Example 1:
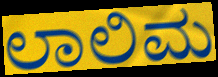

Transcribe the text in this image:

ಲಾಲಿಮ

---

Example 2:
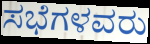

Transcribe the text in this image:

ಸಭೆಗಳವರು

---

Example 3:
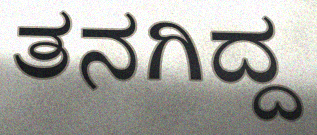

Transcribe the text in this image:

ತನಗಿದ್ದ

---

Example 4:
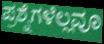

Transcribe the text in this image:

ಪ್ರಶ್ನೆಗಳೆಲ್ಲವೂ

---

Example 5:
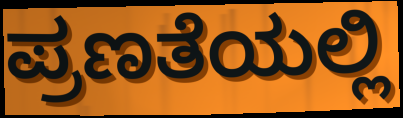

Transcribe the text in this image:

ಪ್ರಣತೆಯಲ್ಲಿ